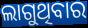
ଲାଗୁଥିବାର